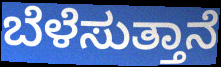
ಬೆಳೆಸುತ್ತಾನೆ